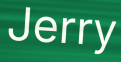
Jerry